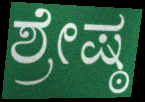
ಶ್ರೇಷ್ಠ